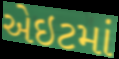
એઇટમાં